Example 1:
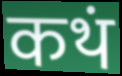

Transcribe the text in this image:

कथं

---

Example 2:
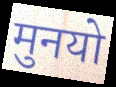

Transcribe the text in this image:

मुनयो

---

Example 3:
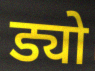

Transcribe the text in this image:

ड्यो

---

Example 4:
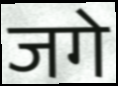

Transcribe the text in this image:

जगे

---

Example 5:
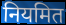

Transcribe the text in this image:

नियमित